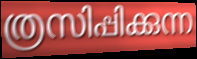
ത്രസിപ്പിക്കുന്ന